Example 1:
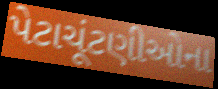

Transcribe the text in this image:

પેટાચૂંટણીઓના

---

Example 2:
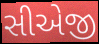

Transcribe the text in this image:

સીએજી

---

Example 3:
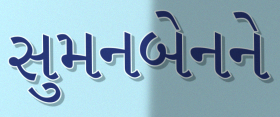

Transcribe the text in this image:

સુમનબેનને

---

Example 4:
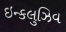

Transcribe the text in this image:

ઇન્કલુઝિવ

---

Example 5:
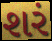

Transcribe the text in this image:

શરં